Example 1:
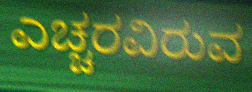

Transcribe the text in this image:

ಎಚ್ಚರವಿರುವ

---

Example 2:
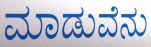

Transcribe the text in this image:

ಮಾಡುವೆನು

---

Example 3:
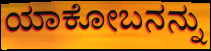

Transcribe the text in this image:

ಯಾಕೋಬನನ್ನು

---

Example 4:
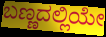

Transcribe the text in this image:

ಬಣ್ಣದಲ್ಲಿಯೇ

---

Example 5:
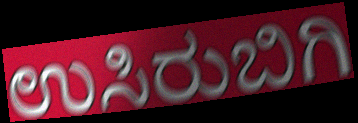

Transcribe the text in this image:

ಉಸಿರುಬಿಗಿ